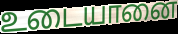
உடையானை